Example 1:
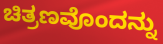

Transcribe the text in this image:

ಚಿತ್ರಣವೊಂದನ್ನು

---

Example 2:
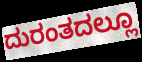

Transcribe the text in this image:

ದುರಂತದಲ್ಲೂ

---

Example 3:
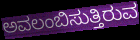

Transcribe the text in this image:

ಅವಲಂಬಿಸುತ್ತಿರುವ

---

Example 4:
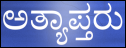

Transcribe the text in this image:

ಅತ್ಯಾಪ್ತರು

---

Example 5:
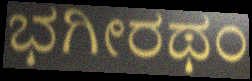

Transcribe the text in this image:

ಭಗೀರಥಂ